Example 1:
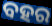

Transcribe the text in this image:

ବହର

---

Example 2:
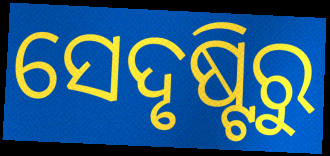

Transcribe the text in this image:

ସେଦୃଷ୍ଟିରୁ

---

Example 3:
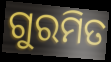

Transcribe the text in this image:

ଗୁରମିତ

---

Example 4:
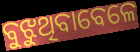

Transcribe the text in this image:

ବୁଝୁଥିବାବେଳେ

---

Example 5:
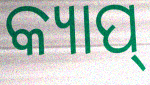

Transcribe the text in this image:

କ୍ୟାପ୍